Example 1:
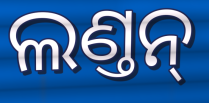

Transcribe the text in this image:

ଲଣ୍ତନ୍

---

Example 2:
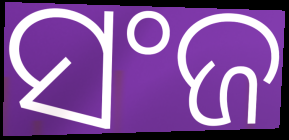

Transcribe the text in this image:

ସଂଜ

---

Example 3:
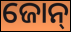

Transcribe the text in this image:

ଜୋନ୍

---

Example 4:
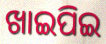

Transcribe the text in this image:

ଖାଇପିଇ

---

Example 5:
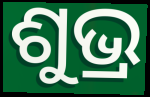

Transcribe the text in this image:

ଶୁଭ୍ର